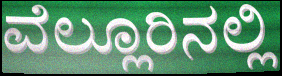
ವೆಲ್ಲೂರಿನಲ್ಲಿ